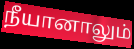
நீயானாலும்